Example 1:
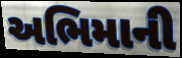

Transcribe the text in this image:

અભિમાની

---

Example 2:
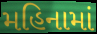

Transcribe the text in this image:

મહિનામાં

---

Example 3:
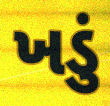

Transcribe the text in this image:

ખડું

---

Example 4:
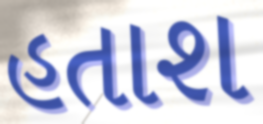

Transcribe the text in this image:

હતાશ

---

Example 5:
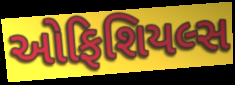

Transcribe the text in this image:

ઓફિશિયલ્સ